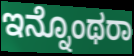
ಇನ್ನೊಂಥರಾ